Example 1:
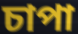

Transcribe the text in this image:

চাপা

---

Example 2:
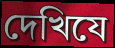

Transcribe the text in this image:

দেখিযে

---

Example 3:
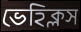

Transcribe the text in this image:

ভেহিক্লস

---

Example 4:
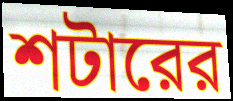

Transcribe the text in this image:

শটারের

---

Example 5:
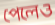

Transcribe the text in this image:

পেলেও